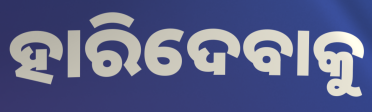
ହାରିଦେବାକୁ